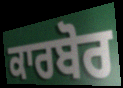
ਕਾਰਬੋਰ